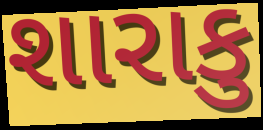
શારાકુ